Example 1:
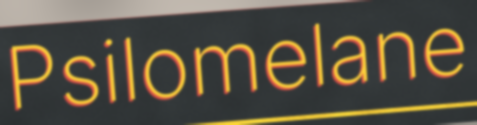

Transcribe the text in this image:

Psilomelane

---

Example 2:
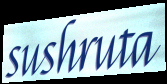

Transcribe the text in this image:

sushruta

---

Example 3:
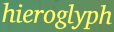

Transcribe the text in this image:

hieroglyph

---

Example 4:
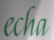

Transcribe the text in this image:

echa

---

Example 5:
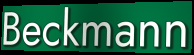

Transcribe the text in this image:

Beckmann